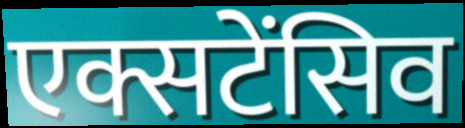
एक्सटेंसिव